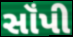
સૉંપી